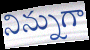
నిన్నుగా